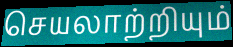
செயலாற்றியும்